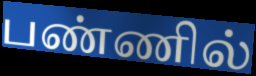
பண்ணில்